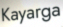
Kayarga